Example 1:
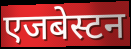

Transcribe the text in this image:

एजबेस्टन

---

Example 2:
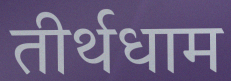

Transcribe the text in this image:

तीर्थधाम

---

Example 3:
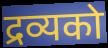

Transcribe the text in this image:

द्रव्यको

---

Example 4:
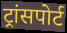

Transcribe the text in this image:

ट्रांसपोर्ट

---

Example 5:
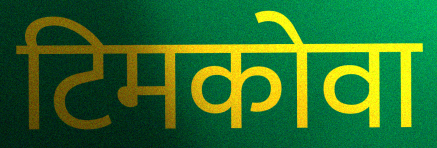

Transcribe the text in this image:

टिमकोवा